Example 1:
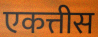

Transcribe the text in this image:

एकत्तीस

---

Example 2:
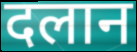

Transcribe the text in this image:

दलान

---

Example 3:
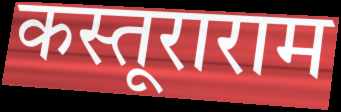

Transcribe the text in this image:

कस्तूराराम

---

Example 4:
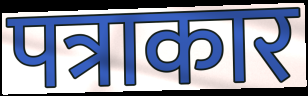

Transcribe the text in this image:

पत्राकार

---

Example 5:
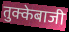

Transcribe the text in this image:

तुक्केबाजी